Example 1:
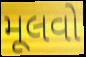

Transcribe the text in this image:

મૂલવો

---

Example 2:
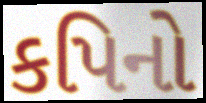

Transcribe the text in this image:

કપિનો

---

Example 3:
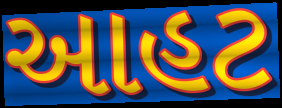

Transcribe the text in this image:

આહટ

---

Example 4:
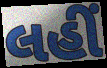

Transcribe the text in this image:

લહીં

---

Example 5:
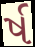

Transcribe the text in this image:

ર્ષ